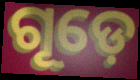
ଗୂଡ଼େ